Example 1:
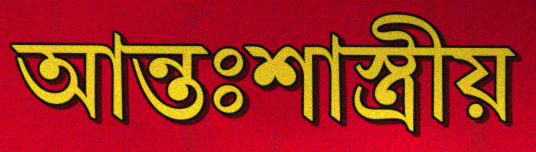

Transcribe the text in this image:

আন্তঃশাস্ত্রীয়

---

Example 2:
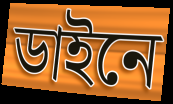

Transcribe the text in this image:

ডাইনে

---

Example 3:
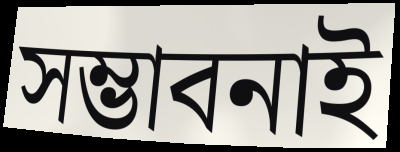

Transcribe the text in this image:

সম্ভাবনাই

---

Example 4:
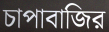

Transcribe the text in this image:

চাপাবাজির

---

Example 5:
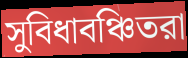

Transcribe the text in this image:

সুবিধাবঞ্চিতরা